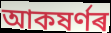
আকষৰ্ণৰ